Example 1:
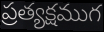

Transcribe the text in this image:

ప్రత్యక్షముగ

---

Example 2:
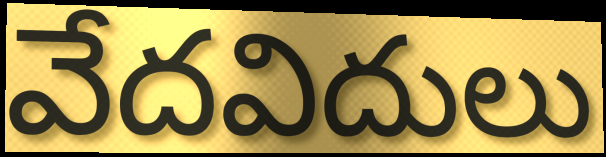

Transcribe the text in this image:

వేదవిదులు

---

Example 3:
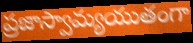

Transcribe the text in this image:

ప్రజాస్వామ్యయుతంగా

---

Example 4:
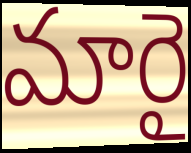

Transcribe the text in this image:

మారై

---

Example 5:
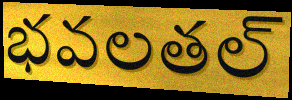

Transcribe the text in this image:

భవలతల్